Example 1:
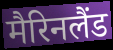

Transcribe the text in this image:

मैरिनलैंड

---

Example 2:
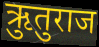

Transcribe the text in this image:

ऋुतुराज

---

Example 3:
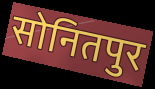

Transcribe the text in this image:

सोनितपुर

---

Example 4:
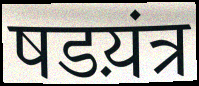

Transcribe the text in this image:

षडय़ंत्र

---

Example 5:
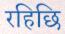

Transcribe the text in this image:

रहिछि